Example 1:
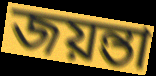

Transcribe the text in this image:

জয়ন্তা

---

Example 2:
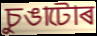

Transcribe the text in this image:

চুঙাটোৰ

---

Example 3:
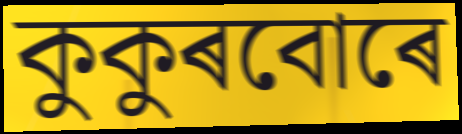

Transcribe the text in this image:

কুকুৰবোৰে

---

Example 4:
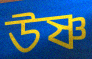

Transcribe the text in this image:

উষ্ণ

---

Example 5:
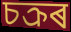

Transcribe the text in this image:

চক্ৰৰ